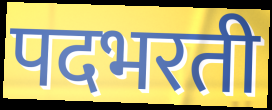
पदभरती